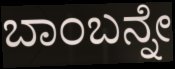
ಬಾಂಬನ್ನೇ